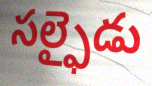
సల్ఫైడు